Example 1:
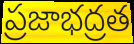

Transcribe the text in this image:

ప్రజాభద్రత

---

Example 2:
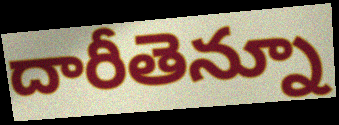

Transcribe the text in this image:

దారీతెన్నూ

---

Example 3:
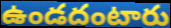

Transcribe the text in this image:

ఉండదంటారు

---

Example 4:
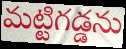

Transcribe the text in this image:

మట్టిగడ్డను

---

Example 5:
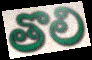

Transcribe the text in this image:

తొలి